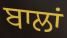
ਬਾਲਾਂ